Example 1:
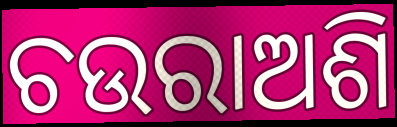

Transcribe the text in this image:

ଚଉରାଅଶି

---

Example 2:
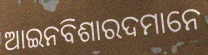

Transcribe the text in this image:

ଆଇନବିଶାରଦମାନେ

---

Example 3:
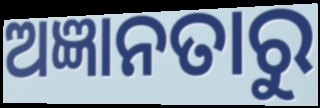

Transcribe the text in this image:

ଅଜ୍ଞାନତାରୁ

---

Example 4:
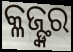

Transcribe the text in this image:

କ୍ଳଜ୍ଙ୍କର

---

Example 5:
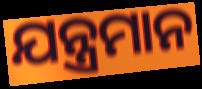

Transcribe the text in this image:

ଯନ୍ତ୍ରମାନ